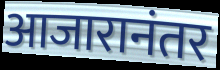
आजारानंतर